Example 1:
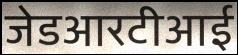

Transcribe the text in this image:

जेडआरटीआई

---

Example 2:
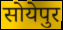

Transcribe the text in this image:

सोयेपुर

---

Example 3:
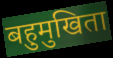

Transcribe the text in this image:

बहुमुखिता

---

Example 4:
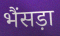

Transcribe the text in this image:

भैंसड़ा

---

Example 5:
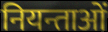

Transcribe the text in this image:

नियन्ताओं